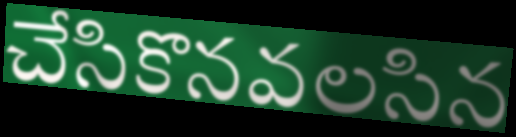
చేసికొనవలసిన